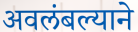
अवलंबल्याने